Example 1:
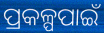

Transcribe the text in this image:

ପ୍ରକଳ୍ପପାଇଁ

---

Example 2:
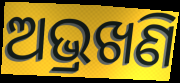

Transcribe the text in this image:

ଅଭ୍ରଖଣି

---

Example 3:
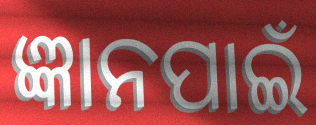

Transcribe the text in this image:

ଜ୍ଞାନପାଇଁ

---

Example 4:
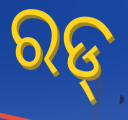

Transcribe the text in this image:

ରଡ୍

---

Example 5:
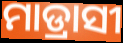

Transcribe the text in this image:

ମାଡ୍ରାସୀ